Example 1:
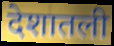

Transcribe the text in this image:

देशातली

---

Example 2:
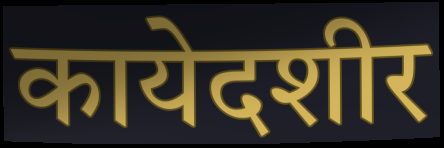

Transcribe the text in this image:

कायेदशीर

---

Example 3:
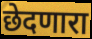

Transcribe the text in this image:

छेदणारा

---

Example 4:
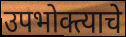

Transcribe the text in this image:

उपभोक्त्याचे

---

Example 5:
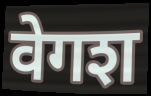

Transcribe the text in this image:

वेगश